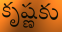
కృష్ణకు